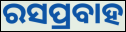
ରସପ୍ରବାହ